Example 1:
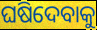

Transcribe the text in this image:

ଘଷିଦେବାକୁ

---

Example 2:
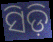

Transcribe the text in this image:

ସିଡ଼ି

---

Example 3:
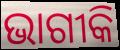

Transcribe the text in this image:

ଭାଗୀକି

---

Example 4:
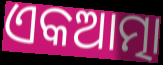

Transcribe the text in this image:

ଏକଆତ୍ମା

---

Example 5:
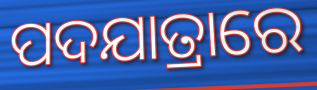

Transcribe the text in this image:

ପଦଯାତ୍ରାରେ